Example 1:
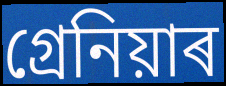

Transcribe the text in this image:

গ্ৰেনিয়াৰ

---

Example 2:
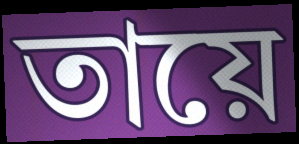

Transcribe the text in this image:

তায়ে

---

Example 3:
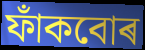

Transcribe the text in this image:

ফাঁকবোৰ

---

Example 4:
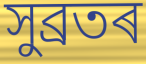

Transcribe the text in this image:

সুব্ৰতৰ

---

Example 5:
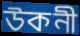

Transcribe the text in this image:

উকনী